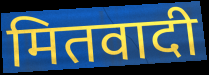
मितवादी